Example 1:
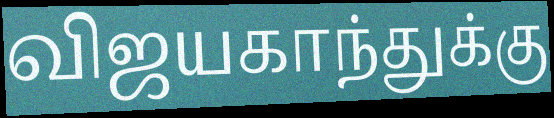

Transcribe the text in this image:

விஜயகாந்துக்கு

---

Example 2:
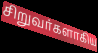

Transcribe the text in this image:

சிறுவர்களாகிய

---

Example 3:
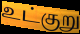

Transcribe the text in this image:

உட்குறு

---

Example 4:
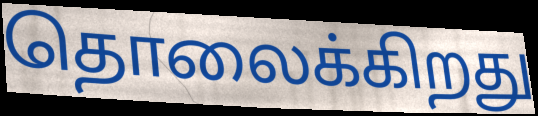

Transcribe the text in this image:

தொலைக்கிறது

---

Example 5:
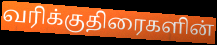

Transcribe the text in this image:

வரிக்குதிரைகளின்